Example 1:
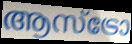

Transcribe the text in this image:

ആസ്ട്രോ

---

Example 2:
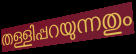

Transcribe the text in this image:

തള്ളിപ്പറയുന്നതും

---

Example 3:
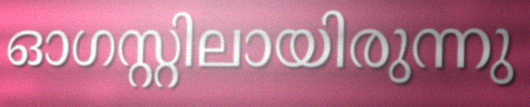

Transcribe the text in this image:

ഓഗസ്റ്റിലായിരുന്നു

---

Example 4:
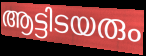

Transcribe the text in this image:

ആട്ടിടയരും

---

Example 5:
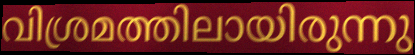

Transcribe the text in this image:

വിശ്രമത്തിലായിരുന്നു